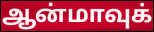
ஆன்மாவுக்